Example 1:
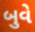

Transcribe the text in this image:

બુવે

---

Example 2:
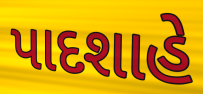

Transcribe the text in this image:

પાદશાહે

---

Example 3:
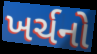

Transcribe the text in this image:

ખર્ચનો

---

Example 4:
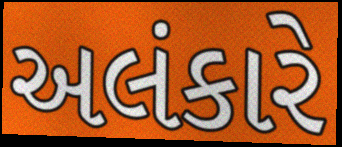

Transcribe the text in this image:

અલંકારે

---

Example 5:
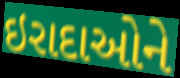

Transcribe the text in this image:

ઇરાદાઓને